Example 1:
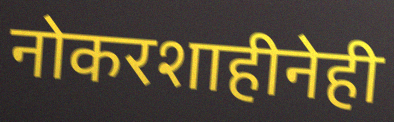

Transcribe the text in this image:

नोकरशाहीनेही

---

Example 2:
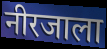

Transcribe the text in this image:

नीरजाला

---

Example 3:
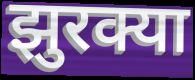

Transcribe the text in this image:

झुरक्या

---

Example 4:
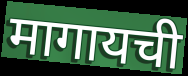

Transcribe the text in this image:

मागायची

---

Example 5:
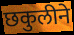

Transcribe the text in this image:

छकुलीने